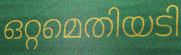
ഒറ്റമെതിയടി